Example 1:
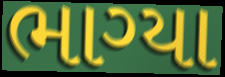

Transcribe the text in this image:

ભાગ્યા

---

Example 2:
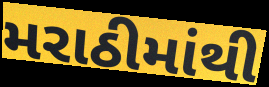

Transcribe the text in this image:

મરાઠીમાંથી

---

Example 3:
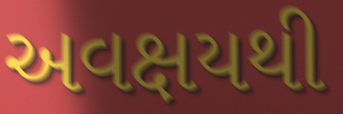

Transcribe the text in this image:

અવક્ષયથી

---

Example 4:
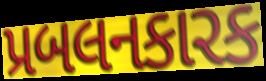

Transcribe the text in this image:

પ્રબલનકારક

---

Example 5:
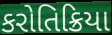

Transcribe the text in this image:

કરોતિક્રિયા